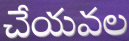
చేయవల